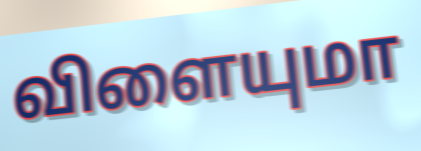
விளையுமா